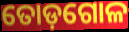
ତୋଡ଼ଗୋଳ